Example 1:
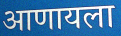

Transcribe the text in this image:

आणायला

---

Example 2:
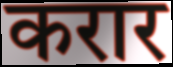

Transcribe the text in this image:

करार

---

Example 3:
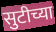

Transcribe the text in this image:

सुटीच्या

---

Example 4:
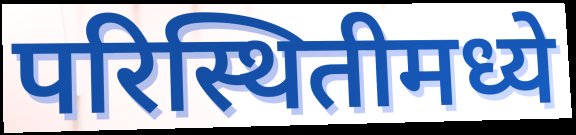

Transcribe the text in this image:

परिस्थितीमध्ये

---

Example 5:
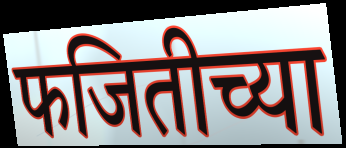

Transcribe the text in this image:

फजितीच्या